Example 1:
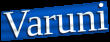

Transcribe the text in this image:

Varuni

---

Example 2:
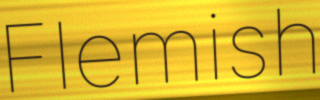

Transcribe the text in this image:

Flemish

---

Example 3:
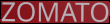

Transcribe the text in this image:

ZOMATO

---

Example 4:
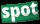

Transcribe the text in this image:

spot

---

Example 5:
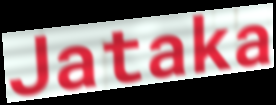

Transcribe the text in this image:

Jataka